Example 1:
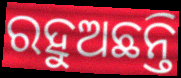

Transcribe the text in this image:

ରହୁଅଛନ୍ତି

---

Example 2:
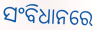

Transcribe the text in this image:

ସଂବିଧାନରେ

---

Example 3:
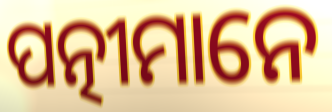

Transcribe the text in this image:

ପତ୍ନୀମାନେ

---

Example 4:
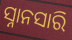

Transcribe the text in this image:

ସ୍ନାନସାରି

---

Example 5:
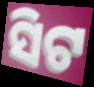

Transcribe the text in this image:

ସିଟ